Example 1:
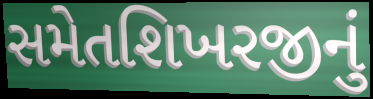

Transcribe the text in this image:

સમેતશિખરજીનું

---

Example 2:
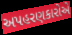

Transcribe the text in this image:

અપહરણકારોએ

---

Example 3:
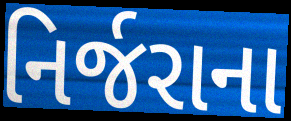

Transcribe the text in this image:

નિર્જરાના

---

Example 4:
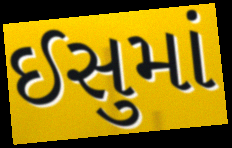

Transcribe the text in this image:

ઈસુમાં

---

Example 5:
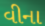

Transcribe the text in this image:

વીના